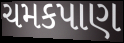
ચમકપાણ